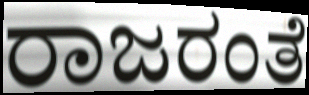
ರಾಜರಂತೆ